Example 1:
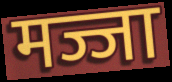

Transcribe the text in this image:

मज्जा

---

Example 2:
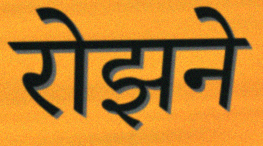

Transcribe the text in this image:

रोझने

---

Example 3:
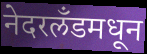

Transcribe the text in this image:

नेदरलँडमधून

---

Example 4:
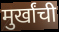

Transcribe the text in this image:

मुर्खांची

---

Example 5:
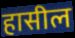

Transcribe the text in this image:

हासील